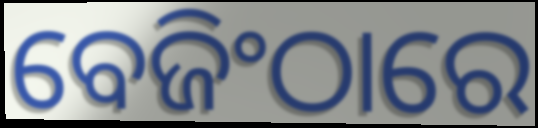
ବେଜିଂଠାରେ